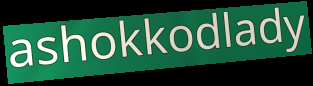
ashokkodlady